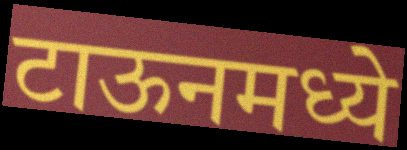
टाऊनमध्ये